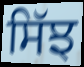
ਸਿੱਝ